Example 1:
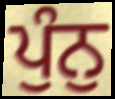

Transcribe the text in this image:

ਪੁੰਨੁ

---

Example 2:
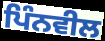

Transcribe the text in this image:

ਪਿੰਨਵੀਲ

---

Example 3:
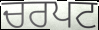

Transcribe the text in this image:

ਚਰਪਟ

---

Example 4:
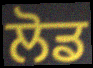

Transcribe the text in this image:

ਲੋਡ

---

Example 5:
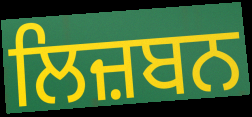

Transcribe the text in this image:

ਲਿਜ਼ਬਨ